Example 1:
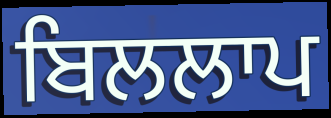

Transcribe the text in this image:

ਬਿਲਲਾਪ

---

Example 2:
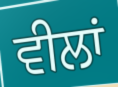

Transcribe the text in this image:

ਵੀਲਾਂ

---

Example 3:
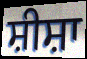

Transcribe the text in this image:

ਸ਼ੀਸ਼ਾ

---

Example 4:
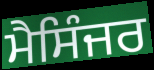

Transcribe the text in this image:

ਮੈਸਿੰਜਰ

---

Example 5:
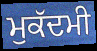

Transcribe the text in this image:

ਮੁਕੱਦਮੀ